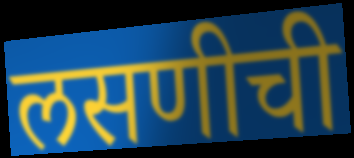
लसणीची